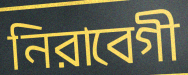
নিরাবেগী